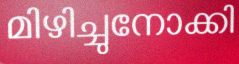
മിഴിച്ചുനോക്കി